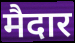
मैदार